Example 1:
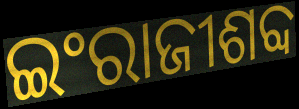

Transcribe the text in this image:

ଇଂରାଜୀଶବ୍ଦ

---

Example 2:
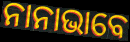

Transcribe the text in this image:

ନାନାଭାବେ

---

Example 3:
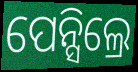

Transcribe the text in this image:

ପେନ୍ସିଲ୍ରେ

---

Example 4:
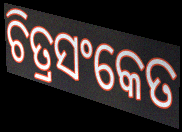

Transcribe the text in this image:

ଚିତ୍ରସଂକେତ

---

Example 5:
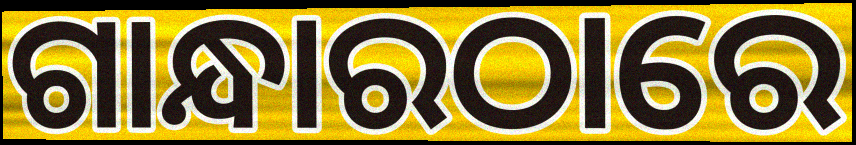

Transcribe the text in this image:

ଗାନ୍ଧାରଠାରେ